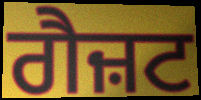
ਗੈਜ਼ਟ